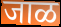
जाळ